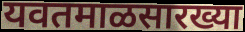
यवतमाळसारख्या